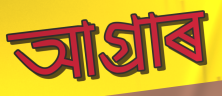
আগ্ৰাৰ